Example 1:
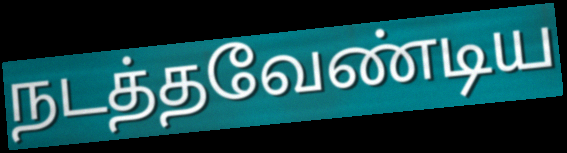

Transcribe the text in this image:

நடத்தவேண்டிய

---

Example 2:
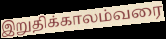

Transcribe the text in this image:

இறுதிக்காலம்வரை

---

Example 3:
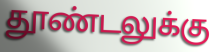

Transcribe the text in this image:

தூண்டலுக்கு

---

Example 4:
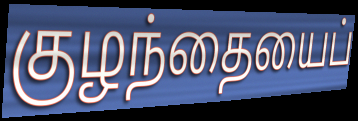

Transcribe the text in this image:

குழந்தையைப்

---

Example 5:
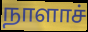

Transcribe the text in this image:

நாளாச்